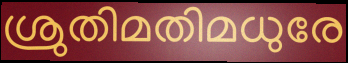
ശ്രുതിമതിമധുരേ